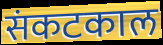
संकटकाल